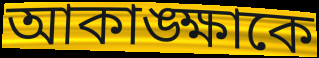
আকাঙ্ক্ষাকে